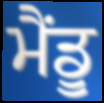
ਮੈਂਡੂ